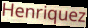
Henriquez